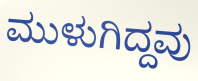
ಮುಳುಗಿದ್ದವು